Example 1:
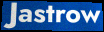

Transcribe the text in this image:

Jastrow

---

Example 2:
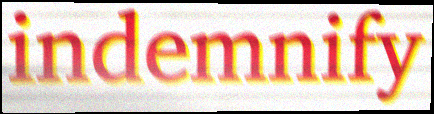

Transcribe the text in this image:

indemnify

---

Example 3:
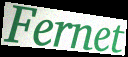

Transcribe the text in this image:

Fernet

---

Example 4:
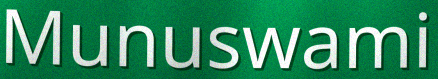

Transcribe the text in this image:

Munuswami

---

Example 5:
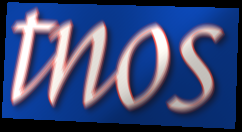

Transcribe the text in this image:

tnos